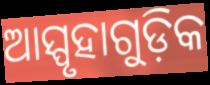
ଆସ୍ପୃହାଗୁଡ଼ିକ